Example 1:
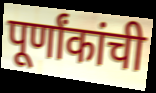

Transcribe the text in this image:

पूर्णांकांची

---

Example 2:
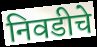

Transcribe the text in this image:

निवडीचे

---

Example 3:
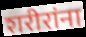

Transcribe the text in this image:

शरीरांना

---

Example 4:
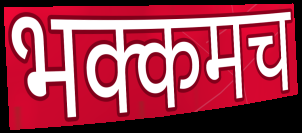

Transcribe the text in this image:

भक्कमच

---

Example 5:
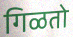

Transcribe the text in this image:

गिळतो